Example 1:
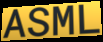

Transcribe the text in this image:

ASML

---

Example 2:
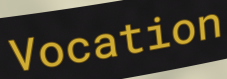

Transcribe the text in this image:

Vocation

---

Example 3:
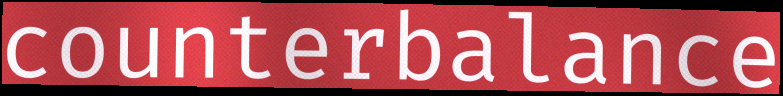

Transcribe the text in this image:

counterbalance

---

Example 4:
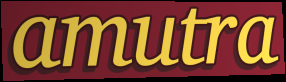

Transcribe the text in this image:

amutra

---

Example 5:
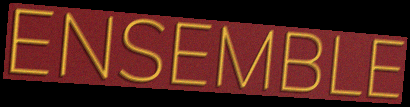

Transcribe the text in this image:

ENSEMBLE